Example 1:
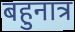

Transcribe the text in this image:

बहुनात्र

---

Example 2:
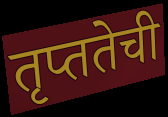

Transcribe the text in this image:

तृप्ततेची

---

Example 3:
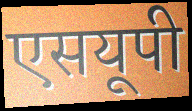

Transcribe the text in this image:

एसयूपी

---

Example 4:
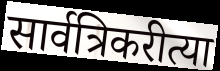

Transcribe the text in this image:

सार्वत्रिकरीत्या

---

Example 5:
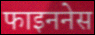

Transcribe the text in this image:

फाइननेस